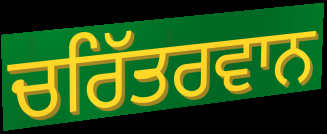
ਚਰਿੱਤਰਵਾਨ